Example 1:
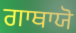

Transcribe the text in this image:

ਗਾਥਾਯੋ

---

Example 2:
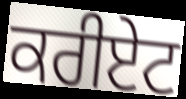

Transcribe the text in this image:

ਕਰੀਏਟ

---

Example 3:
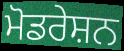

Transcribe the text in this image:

ਮੋਡਰੇਸ਼ਨ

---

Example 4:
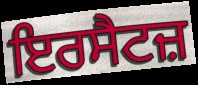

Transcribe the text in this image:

ਇਰਸੈਟਜ਼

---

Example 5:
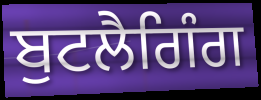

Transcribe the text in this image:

ਬੁਟਲੈਗਿੰਗ